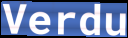
Verdu